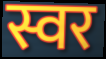
स्वर